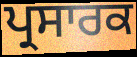
ਪ੍ਰਸਾਰਕ